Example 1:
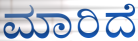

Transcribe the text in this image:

ಮಾರಿದೆ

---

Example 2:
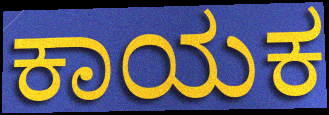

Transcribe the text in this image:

ಕಾಯಕ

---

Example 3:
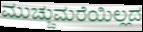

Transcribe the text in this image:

ಮುಚ್ಚುಮರೆಯಿಲ್ಲದ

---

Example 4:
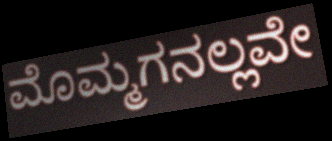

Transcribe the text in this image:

ಮೊಮ್ಮಗನಲ್ಲವೇ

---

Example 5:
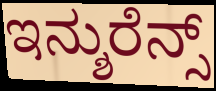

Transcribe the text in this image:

ಇನ್ಶುರೆನ್ಸ್